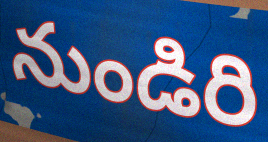
నుండిరి